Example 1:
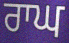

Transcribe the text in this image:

ਰਾਘ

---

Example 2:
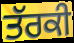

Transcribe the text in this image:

ਤੱਰਕੀ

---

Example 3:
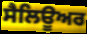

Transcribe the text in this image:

ਸੈਲਿਊਅਰ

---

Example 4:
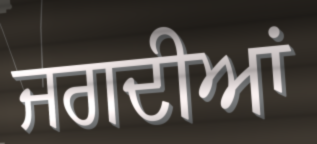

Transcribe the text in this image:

ਜਗਦੀਆਂ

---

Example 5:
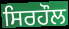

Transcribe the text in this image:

ਸਿਰਹੌਲ